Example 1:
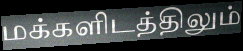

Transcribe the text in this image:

மக்களிடத்திலும்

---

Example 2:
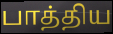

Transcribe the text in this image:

பாத்திய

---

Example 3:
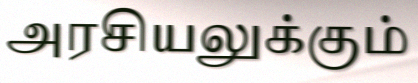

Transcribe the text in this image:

அரசியலுக்கும்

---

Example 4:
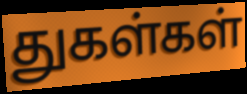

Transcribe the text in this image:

துகள்கள்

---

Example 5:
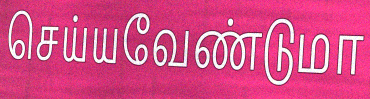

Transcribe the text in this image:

செய்யவேண்டுமா